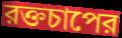
রক্তচাপের